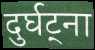
दुर्घट्ना